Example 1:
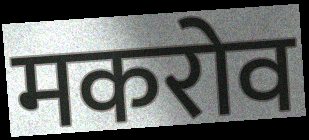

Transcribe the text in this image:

मकरोव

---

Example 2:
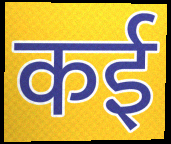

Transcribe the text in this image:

कई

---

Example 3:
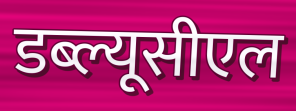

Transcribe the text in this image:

डब्ल्यूसीएल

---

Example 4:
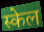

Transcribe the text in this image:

स्केल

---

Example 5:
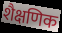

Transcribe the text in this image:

शैक्षणिक